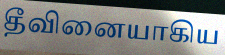
தீவினையாகிய